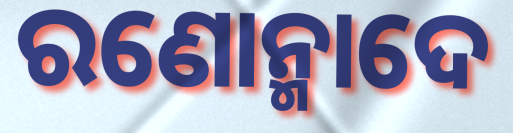
ରଣୋନ୍ମାଦେ